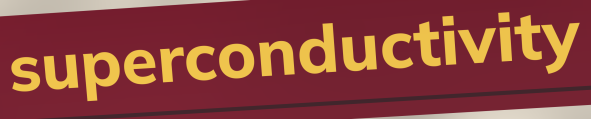
superconductivity